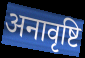
अनावृष्टि